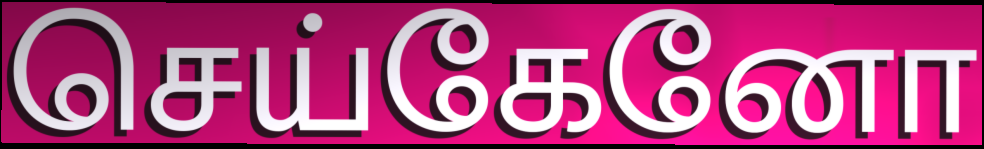
செய்கேனோ